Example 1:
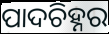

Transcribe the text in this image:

ପାଦଚିହ୍ନର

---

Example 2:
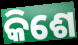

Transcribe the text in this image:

କିଶେ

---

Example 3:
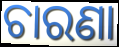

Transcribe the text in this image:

ଚାରଣା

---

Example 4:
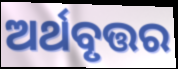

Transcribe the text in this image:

ଅର୍ଥବୃତ୍ତର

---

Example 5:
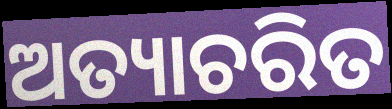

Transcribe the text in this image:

ଅତ୍ୟାଚରିତ